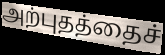
அற்புதத்தைச்